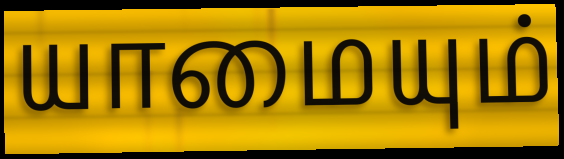
யாமையும்